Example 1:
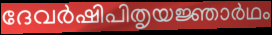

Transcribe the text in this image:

ദേവർഷിപിതൃയജ്ഞാർഥം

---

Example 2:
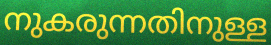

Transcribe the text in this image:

നുകരുന്നതിനുള്ള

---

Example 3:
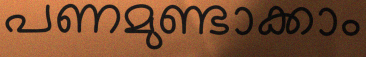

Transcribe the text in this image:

പണമുണ്ടാക്കാം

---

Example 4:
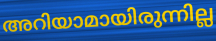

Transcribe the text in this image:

അറിയാമായിരുന്നില്ല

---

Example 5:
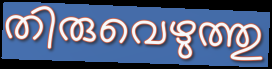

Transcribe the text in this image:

തിരുവെഴുത്തു